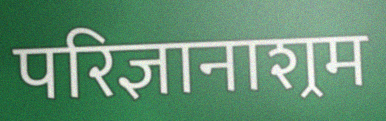
परिज्ञानाश्रम